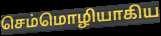
செம்மொழியாகிய